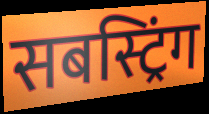
सबस्ट्रिंग